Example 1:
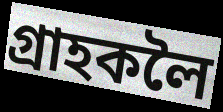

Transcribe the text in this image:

গ্ৰাহকলৈ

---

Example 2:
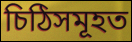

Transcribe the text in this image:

চিঠিসমূহত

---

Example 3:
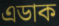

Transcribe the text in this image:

এডাক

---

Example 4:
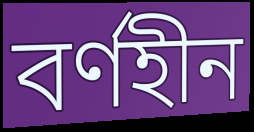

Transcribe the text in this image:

বৰ্ণহীন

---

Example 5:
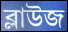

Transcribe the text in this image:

ব্লাউজ